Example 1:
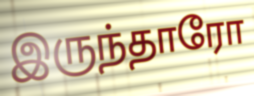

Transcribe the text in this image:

இருந்தாரோ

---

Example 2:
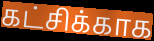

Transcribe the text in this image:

கட்சிக்காக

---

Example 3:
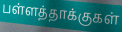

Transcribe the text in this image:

பள்ளத்தாக்குகள்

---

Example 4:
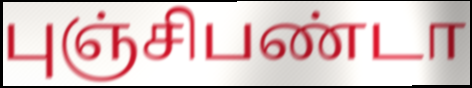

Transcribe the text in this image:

புஞ்சிபண்டா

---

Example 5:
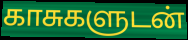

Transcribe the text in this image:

காசுகளுடன்